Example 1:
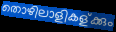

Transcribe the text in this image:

തൊഴിലാളികള്ക്കും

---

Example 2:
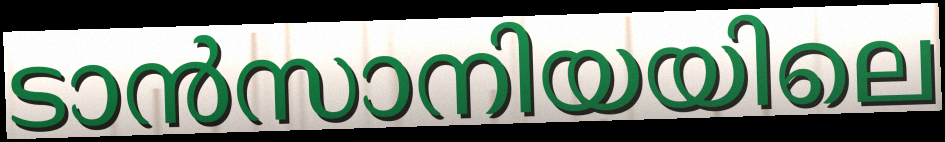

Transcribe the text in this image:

ടാൻസാനിയയിലെ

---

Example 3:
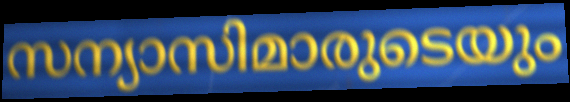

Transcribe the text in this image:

സന്യാസിമാരുടെയും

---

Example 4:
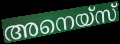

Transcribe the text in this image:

അനെയ്സ്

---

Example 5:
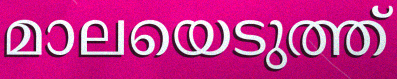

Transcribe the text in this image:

മാലയെടുത്ത്